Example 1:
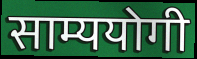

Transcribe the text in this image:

साम्ययोगी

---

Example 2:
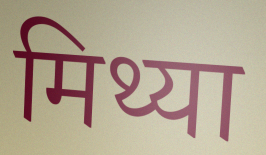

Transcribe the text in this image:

मिथ्या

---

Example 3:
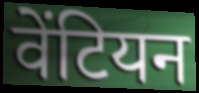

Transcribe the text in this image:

वेंटियन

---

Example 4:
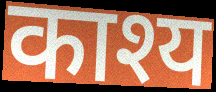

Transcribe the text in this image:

काश्य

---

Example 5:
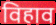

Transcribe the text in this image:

विहाव